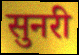
सुनरी